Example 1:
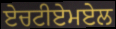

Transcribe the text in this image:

ਏਚਟੀਏਮਏਲ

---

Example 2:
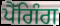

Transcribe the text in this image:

ਪੈੱਗਿੰਗ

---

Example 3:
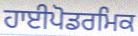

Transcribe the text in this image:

ਹਾਈਪੋਡਰਮਿਕ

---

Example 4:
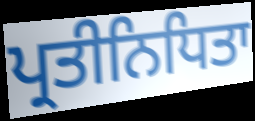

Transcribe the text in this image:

ਪ੍ਰਤੀਨਿਧਿਤਾ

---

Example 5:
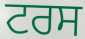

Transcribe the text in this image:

ਟਰਸ